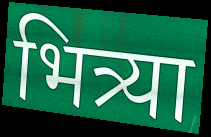
भित्र्या